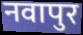
नवापुर